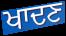
ਖਾਦਣ